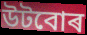
উটবোৰ